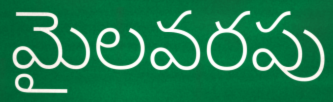
మైలవరపు